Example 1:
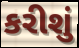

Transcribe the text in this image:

કરીશું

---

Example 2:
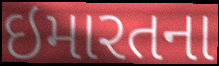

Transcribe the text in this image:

ઇમારતના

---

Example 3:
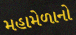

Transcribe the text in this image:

મહામેળાનો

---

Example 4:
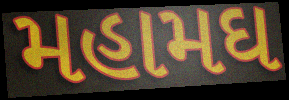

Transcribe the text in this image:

મહામઘ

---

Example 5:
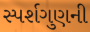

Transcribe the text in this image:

સ્પર્શગુણની